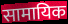
सामायिक